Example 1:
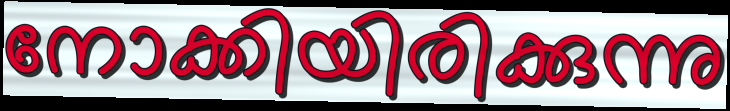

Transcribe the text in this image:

നോക്കിയിരിക്കുന്നു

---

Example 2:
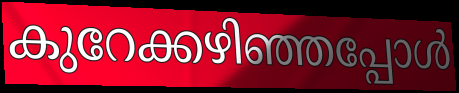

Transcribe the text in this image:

കുറേക്കഴിഞ്ഞപ്പോൾ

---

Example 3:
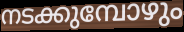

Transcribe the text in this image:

നടക്കുമ്പോഴും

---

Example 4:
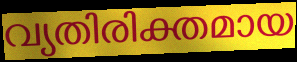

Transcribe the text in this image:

വ്യതിരിക്തമായ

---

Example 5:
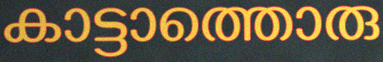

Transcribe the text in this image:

കാട്ടാത്തൊരു